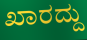
ಖಾರದ್ದು